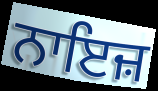
ਨਾਇਜ਼